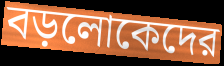
বড়লোকেদের